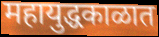
महायुद्धकाळात